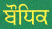
ਬੌਧਿਕ